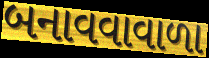
બનાવવાવાળા